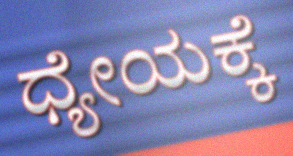
ಧ್ಯೇಯಕ್ಕೆ